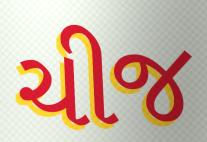
ચીજ